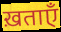
ख़ताएँ